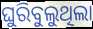
ଘୁରିବୁଲୁଥିଲା